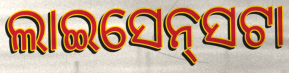
ଲାଇସେନ୍‍ସଟା